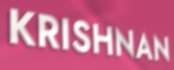
KRISHNAN